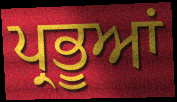
ਪ੍ਰਭੂਆਂ